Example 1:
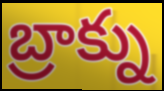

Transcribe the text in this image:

బ్రాక్ను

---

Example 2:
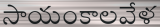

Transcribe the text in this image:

సాయంకాలవేళ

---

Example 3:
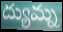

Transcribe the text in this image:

ద్యుమ్న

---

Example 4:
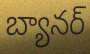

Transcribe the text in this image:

బ్యానర్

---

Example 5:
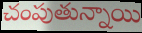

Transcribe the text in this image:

చంపుతున్నాయి